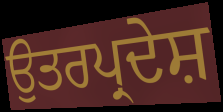
ਉਤਰਪ੍ਰਦੇਸ਼